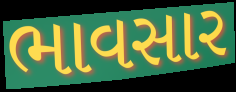
ભાવસાર